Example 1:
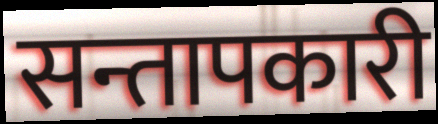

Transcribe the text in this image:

सन्तापकारी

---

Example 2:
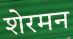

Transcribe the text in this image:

शेरमन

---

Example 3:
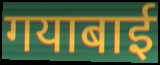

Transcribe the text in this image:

गयाबाई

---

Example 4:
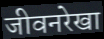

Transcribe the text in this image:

जीवनरेखा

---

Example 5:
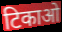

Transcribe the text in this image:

टिकाओ